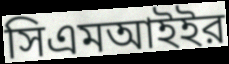
সিএমআইইর